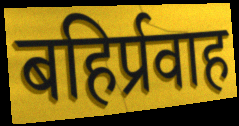
बहिर्प्रवाह